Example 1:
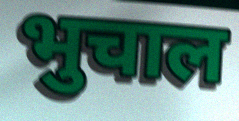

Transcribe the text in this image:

भुचाल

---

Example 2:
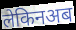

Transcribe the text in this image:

लेकिनअब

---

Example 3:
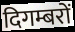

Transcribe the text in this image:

दिगम्बरों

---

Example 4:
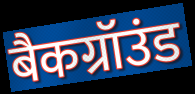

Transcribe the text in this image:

बैकग्रॉउंड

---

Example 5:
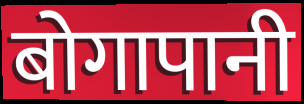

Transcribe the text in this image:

बोगापानी